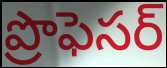
ప్రొఫెసర్